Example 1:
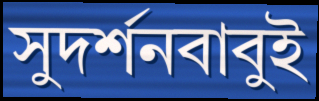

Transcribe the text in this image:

সুদর্শনবাবুই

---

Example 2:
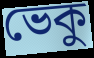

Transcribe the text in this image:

ভেকু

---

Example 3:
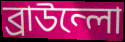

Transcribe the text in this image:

ব্রাউন্লো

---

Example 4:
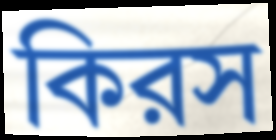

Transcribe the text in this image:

কিরস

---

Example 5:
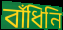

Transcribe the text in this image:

বাঁধিনি